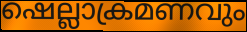
ഷെല്ലാക്രമണവും